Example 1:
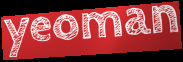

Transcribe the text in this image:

yeoman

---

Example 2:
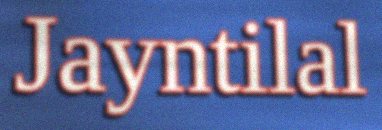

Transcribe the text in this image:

Jayntilal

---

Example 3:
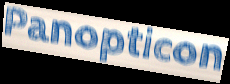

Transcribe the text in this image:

Panopticon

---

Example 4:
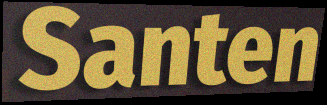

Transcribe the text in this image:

Santen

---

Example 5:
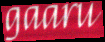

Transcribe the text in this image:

gaaru